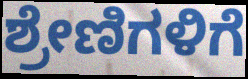
ಶ್ರೇಣಿಗಳಿಗೆ